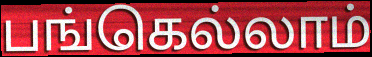
பங்கெல்லாம்